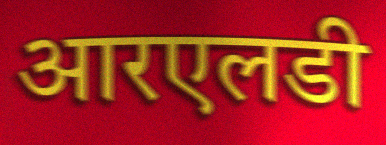
आरएलडी